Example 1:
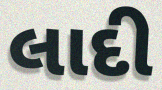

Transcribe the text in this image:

લાદી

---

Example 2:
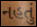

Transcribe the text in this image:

નહતું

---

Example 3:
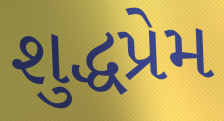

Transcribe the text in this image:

શુદ્ધપ્રેમ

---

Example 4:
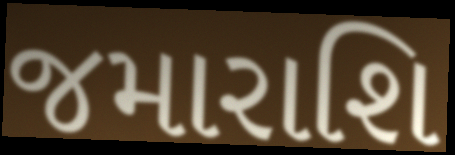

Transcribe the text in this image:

જમારાશિ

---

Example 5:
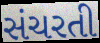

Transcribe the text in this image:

સંચરતી